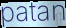
patan